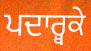
ਪਦਾਰ੍ਥਕੇ